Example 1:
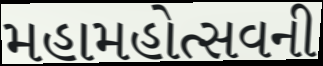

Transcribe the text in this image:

મહામહોત્સવની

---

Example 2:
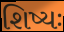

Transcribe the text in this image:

શિષ્યઃ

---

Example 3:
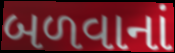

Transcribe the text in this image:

બળવાનાં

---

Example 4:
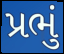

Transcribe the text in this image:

પ્રભું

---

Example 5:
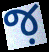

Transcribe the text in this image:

જ઼